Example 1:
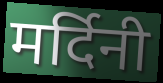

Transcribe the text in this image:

मर्दिनी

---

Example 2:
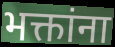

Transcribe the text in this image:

भक्तांना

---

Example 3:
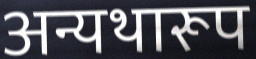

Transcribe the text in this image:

अन्यथारूप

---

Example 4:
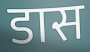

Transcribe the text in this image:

डास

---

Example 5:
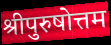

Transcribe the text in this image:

श्रीपुरुषोत्तम